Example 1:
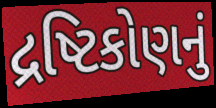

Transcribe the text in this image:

દ્રષ્ટિકોણનું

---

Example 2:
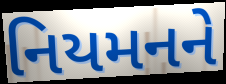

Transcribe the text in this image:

નિયમનને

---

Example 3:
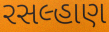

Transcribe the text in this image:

રસલ્હાણ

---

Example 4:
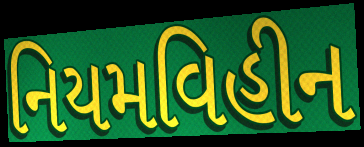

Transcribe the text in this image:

નિયમવિહીન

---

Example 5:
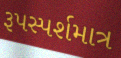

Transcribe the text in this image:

રૂપસ્પર્શમાત્ર